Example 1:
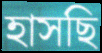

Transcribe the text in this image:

হাসছি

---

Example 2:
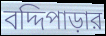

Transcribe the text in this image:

বদ্দিপাড়ার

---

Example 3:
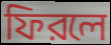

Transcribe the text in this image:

ফিরলে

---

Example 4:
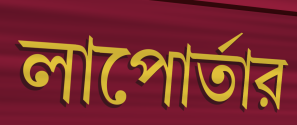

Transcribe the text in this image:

লাপোর্তার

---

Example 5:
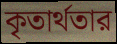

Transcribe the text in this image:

কৃতার্থতার